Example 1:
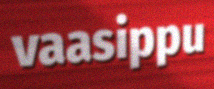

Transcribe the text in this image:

vaasippu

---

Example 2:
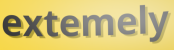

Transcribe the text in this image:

extemely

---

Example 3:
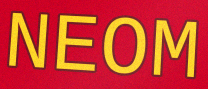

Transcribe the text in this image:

NEOM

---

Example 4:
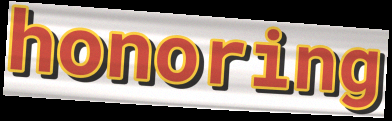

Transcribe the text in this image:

honoring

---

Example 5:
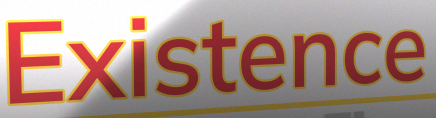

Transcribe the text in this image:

Existence